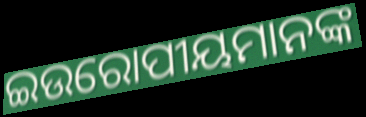
ଇଉରୋପୀୟମାନଙ୍କ